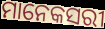
ମାନେକସରୀ